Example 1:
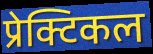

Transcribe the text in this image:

प्रेक्टिकल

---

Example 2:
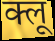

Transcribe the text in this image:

क्लू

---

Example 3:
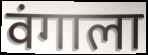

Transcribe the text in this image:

वंगाला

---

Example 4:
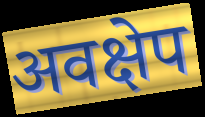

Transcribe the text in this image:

अवक्षेप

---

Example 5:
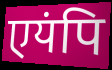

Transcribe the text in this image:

एयंपि